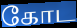
கோட